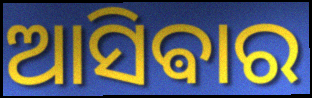
ଆସିଵାର